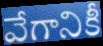
వేగానికీ